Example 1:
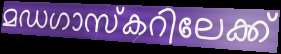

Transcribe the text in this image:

മഡഗാസ്കറിലേക്ക്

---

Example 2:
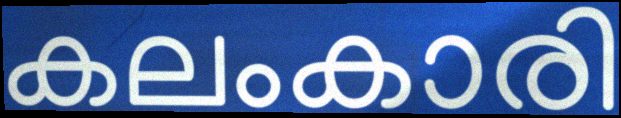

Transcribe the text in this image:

കലംകാരി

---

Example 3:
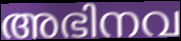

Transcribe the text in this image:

അഭിനവ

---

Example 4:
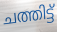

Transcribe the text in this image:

ചത്തിട്ട്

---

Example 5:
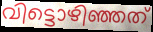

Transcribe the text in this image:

വിട്ടൊഴിഞ്ഞത്